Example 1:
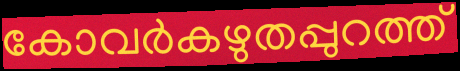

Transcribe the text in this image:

കോവർകഴുതപ്പുറത്ത്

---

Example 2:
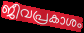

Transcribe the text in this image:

ജീവപ്രകാശം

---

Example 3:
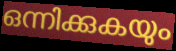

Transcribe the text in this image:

ഒന്നിക്കുകയും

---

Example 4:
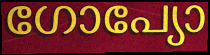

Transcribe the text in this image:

ഗോപ്യോ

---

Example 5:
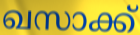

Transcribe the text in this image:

ഖസാക്ക്